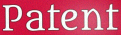
Patent